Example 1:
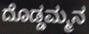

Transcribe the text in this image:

ದೊಡ್ಡಮ್ಮನ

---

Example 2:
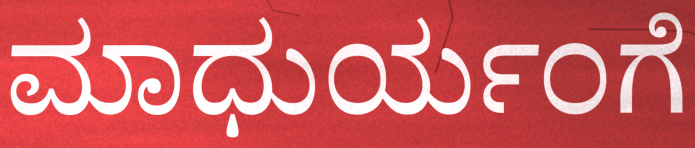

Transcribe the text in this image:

ಮಾಧುರ್ಯಂಗೆ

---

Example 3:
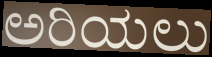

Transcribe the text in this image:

ಅರಿಯಲು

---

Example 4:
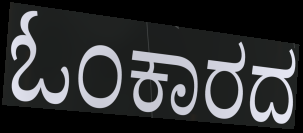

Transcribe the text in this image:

ಓಂಕಾರದ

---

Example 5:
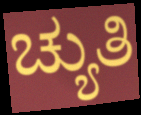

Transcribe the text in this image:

ಚ್ಯುತಿ